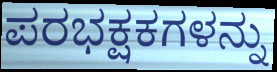
ಪರಭಕ್ಷಕಗಳನ್ನು